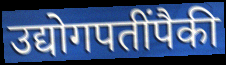
उद्योगपतींपैकी